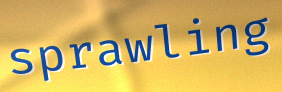
sprawling